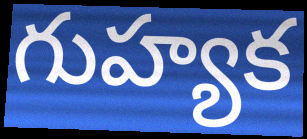
గుహ్యక